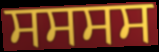
ਸਸਸਸ